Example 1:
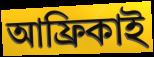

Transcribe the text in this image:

আফ্ৰিকাই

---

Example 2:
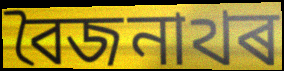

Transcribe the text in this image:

বৈজনাথৰ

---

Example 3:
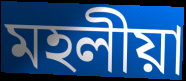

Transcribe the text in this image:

মহলীয়া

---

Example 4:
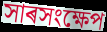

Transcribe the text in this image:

সাৰসংক্ষেপ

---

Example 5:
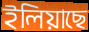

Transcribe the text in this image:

ইলিয়াছে